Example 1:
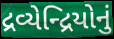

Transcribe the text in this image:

દ્રવ્યેન્દ્રિયોનું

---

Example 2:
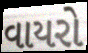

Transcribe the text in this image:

વાયરો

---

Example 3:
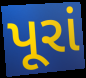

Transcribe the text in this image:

પૂરાં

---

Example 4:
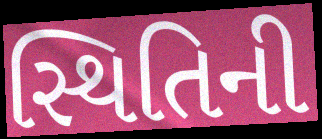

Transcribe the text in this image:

સ્થિતિની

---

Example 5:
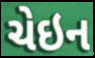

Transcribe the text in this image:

ચેઇન